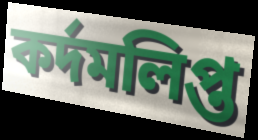
কর্দমলিপ্ত